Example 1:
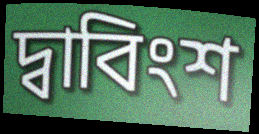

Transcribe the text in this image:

দ্বাবিংশ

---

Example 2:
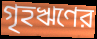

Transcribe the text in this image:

গৃহঋণের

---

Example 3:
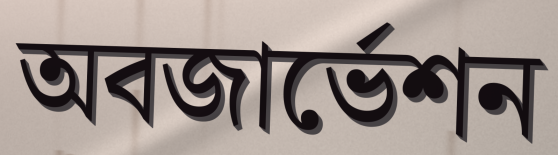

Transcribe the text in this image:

অবজার্ভেশন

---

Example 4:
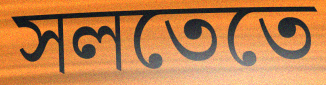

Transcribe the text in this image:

সলতেতে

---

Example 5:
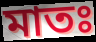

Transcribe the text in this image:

মাতঃ